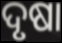
ଦୃଷା